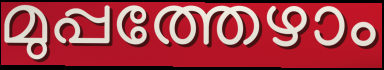
മുപ്പത്തേഴാം